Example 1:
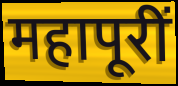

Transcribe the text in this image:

महापूरीं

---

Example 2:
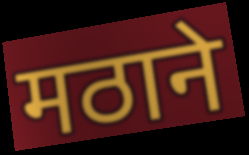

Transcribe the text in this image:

मठाने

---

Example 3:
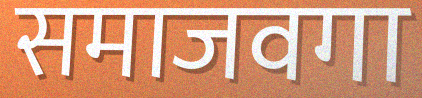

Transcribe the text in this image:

समाजवगा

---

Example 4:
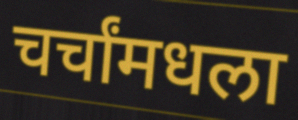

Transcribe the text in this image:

चर्चांमधला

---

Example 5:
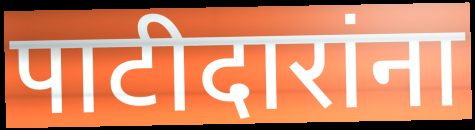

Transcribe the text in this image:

पाटीदारांना